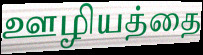
ஊழியத்தை